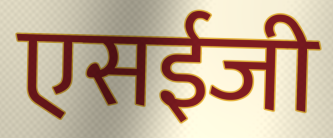
एसईजी